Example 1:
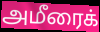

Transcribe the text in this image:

அமீரைக்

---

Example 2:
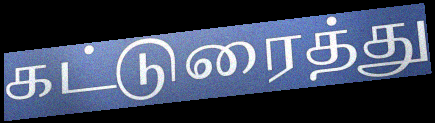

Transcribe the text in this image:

கட்டுரைத்து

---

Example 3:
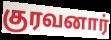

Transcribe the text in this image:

குரவனார்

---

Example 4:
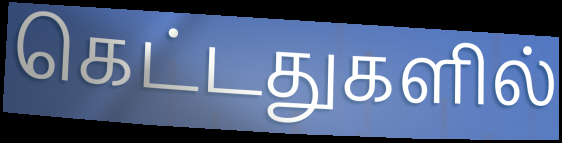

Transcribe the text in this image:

கெட்டதுகளில்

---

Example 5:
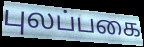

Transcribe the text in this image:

புலப்பகை